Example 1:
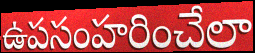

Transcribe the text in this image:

ఉపసంహరించేలా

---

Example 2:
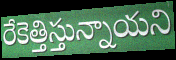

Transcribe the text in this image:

రేకెత్తిస్తున్నాయని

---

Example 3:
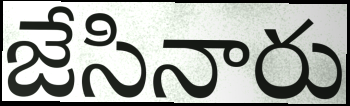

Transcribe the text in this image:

జేసినారు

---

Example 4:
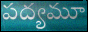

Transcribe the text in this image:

పద్యమూ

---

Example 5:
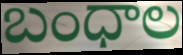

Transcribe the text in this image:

బంధాల